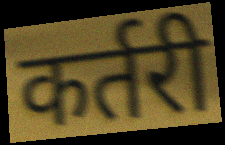
कर्तरी